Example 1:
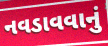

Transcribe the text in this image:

નવડાવવાનું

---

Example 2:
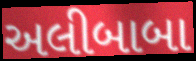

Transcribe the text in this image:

અલીબાબા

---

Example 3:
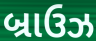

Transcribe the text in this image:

બ્રાઉઝ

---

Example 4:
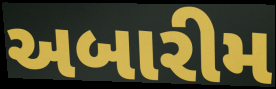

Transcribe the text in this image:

અબારીમ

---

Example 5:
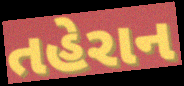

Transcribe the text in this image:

તહેરાન